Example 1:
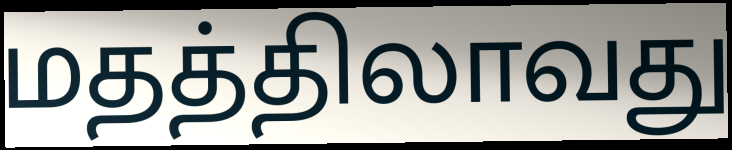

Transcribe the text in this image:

மதத்திலாவது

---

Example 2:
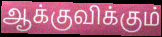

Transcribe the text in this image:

ஆக்குவிக்கும்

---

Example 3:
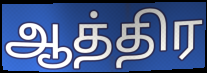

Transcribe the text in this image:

ஆத்திர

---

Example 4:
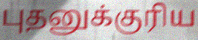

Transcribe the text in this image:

புதனுக்குரிய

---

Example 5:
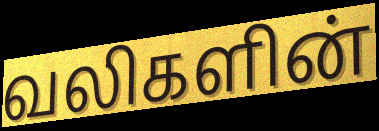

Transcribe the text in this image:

வலிகளின்